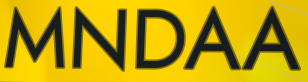
MNDAA